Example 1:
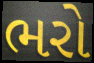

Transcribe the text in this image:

ભરો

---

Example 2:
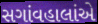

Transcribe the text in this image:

સગાંવહાલાંએ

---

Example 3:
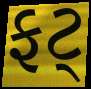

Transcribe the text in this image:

ફટ્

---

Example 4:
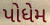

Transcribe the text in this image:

પોધેમ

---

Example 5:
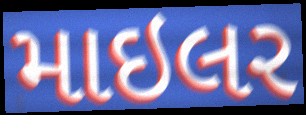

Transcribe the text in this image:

માઇલર